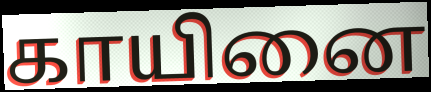
காயினை